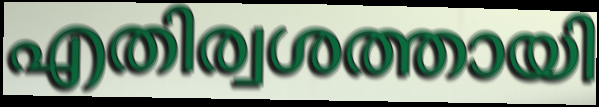
എതിര്വശത്തായി